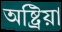
অষ্ট্ৰিয়া